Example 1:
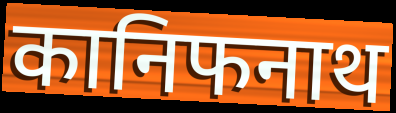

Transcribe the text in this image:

कानिफनाथ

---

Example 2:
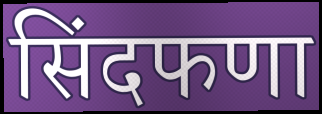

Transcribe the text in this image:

सिंदफणा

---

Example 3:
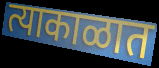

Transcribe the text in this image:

त्याकाळात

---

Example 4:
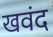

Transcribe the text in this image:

खवंद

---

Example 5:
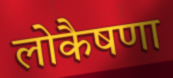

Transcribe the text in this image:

लोकैषणा